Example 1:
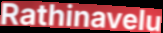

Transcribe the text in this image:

Rathinavelu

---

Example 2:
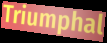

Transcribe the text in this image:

Triumphal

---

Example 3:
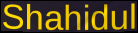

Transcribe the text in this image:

Shahidul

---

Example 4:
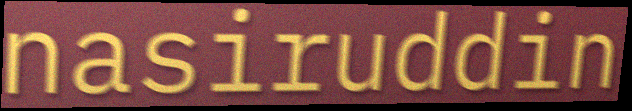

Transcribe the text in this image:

nasiruddin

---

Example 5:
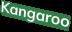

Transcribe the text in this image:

Kangaroo